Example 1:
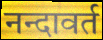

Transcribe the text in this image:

नन्दावर्त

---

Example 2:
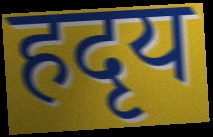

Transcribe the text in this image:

हदृय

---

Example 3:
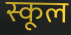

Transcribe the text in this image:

स्‍कूल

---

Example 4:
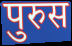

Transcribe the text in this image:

पुरुस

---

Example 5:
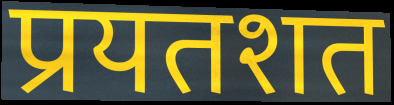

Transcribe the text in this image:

प्रयतशत